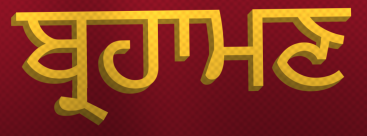
ਬ੍ਰਹਾਮਣ